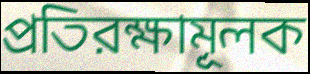
প্রতিরক্ষামূলক